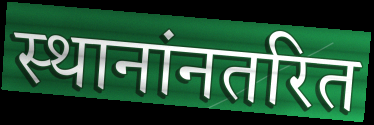
स्थानांनतरित